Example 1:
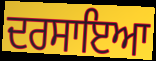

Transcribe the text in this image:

ਦਰਸਾਇਆ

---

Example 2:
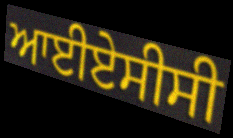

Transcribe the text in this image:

ਆਈਏਸੀਸੀ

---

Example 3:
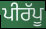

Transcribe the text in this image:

ਪੀਰੱਪੂ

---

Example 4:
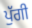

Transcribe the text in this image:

ਪੁੱਗੀ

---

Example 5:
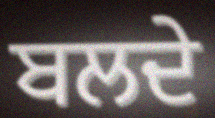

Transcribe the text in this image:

ਬਲਦੇ